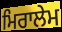
ਮਿਰਾਲੇਮ